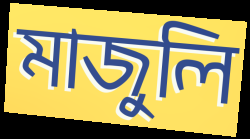
মাজুলি